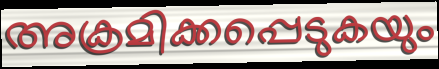
അക്രമിക്കപ്പെടുകയും